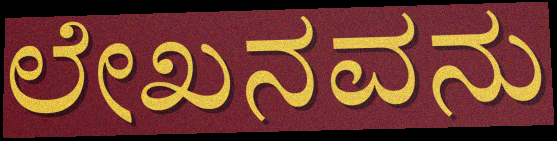
ಲೇಖನವನು